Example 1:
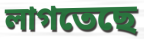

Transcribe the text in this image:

লাগতেছে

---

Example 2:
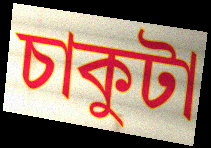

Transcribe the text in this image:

চাকুটা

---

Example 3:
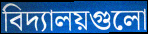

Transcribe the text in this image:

বিদ্যালয়গুলো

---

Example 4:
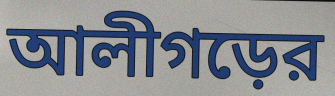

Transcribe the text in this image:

আলীগড়ের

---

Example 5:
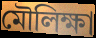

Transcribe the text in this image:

মৌলিক্ষা